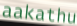
aakathu